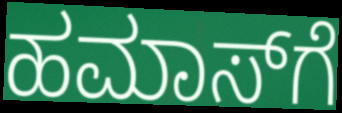
ಹಮಾಸ್‌ಗೆ